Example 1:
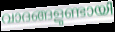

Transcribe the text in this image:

വാദങ്ങളുണ്ടായി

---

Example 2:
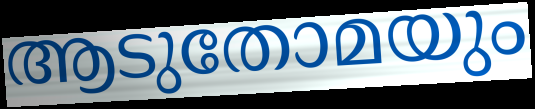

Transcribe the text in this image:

ആടുതോമയും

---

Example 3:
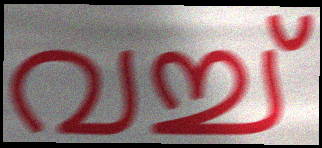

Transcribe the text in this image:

വച്ച്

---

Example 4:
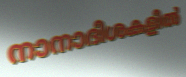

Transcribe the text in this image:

നാനാദിശകളിൽ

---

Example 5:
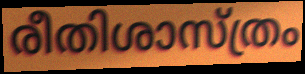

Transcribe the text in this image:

രീതിശാസ്ത്രം